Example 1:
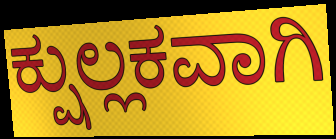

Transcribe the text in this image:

ಕ್ಷುಲ್ಲಕವಾಗಿ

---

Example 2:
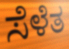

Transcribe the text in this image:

ಸೆಳೆತ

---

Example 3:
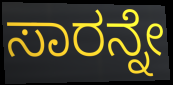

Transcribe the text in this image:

ಸಾರನ್ನೇ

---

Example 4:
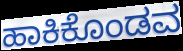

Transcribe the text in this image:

ಹಾಕಿಕೊಂಡವ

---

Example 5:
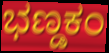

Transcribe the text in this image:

ಭಣ್ಡಕಂ